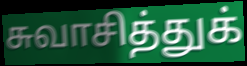
சுவாசித்துக்